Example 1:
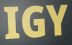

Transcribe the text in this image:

IGY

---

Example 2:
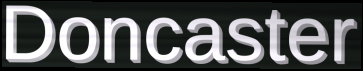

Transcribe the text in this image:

Doncaster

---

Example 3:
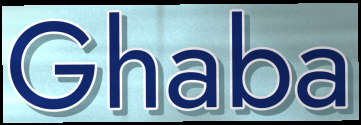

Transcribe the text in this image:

Ghaba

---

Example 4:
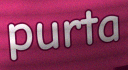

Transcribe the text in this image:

purta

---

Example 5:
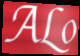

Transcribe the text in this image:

ALo